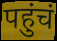
पहुंचं